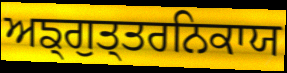
ਅਙ੍ਗੁਤ੍ਤਰਨਿਕਾਯ